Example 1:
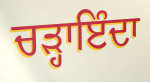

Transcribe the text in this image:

ਚੜ੍ਹਾਇੰਦਾ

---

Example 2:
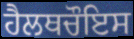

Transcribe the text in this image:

ਹੈਲਥਚੌਇਸ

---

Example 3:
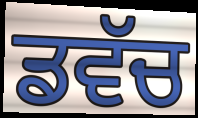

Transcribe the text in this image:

ਡਵੱਚ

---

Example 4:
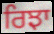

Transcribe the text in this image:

ਰਿਝਾ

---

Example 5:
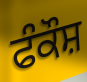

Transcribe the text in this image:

ਫੰਕੌਸ਼